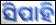
ସିପାହି